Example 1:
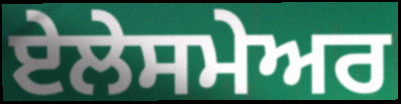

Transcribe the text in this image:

ਏਲੇਸਮੇਅਰ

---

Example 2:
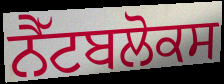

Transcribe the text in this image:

ਨੈੱਟਬਲੋਕਸ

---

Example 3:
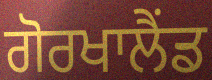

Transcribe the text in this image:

ਗੋਰਖਾਲੈਂਡ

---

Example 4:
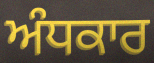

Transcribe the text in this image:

ਅੰਧਕਾਰ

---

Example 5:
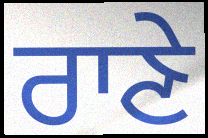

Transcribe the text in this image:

ਰਾਣੇ